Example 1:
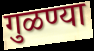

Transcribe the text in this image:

गुळण्या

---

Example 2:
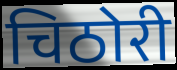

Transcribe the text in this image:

चिठोरी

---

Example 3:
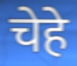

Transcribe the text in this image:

चेहे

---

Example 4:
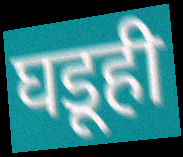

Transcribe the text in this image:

घडूही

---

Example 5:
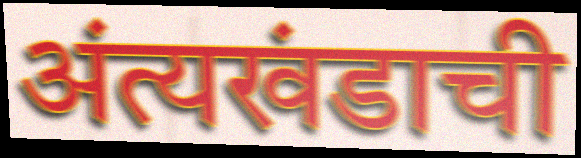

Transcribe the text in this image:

अंत्यखंडाची